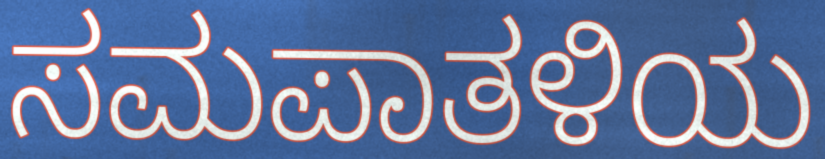
ಸಮಪಾತಳಿಯ